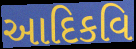
આદિકવિ